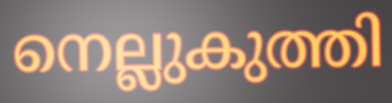
നെല്ലുകുത്തി